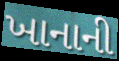
ખાનાની